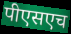
पीएसएच